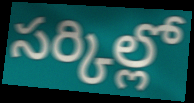
సర్కిల్లో